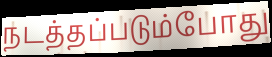
நடத்தப்படும்போது